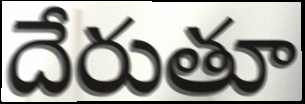
దేరుతూ